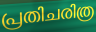
പ്രതിചരിത്ര